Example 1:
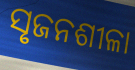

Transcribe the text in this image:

ସୃଜନଶୀଳା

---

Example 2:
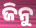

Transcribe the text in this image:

ଜିନୁ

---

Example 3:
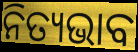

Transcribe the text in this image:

ନିତ୍ୟଭାବ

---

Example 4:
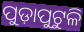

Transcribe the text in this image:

ପୁଡ଼ାପୁଟୁଳି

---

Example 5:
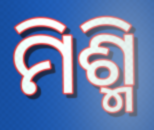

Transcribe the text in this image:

ମିଶ୍ମି